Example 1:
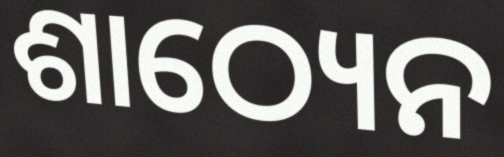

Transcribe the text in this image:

ଶାଠ୍ୟେନ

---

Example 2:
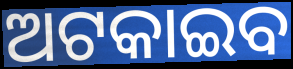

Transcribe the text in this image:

ଅଟକାଇବ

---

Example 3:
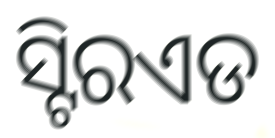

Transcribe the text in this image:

ସ୍ଟିରଏଡ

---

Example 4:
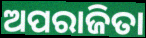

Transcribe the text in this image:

ଅପରାଜିତା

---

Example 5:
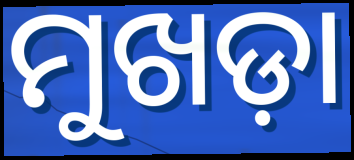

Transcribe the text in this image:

ମୁଖଡ଼ା